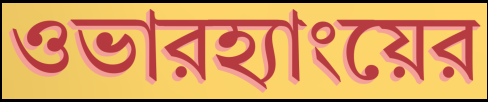
ওভারহ্যাংয়ের